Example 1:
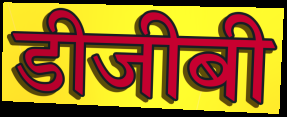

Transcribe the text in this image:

डीजीबी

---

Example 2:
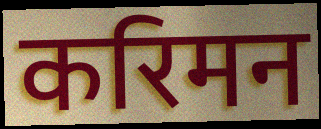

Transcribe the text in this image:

करिमन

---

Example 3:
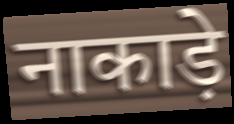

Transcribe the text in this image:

नाकाड़े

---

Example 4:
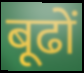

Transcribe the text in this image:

बूढों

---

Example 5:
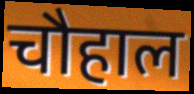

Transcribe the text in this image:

चौहाल